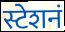
स्टेशनं